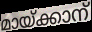
മായ്ക്കാന്